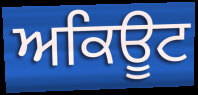
ਅਕਿਊਟ